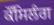
ਕੌਂਸਿਲੰਗ